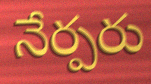
నేర్పరు